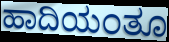
ಹಾದಿಯಂತೂ